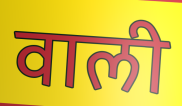
वाली